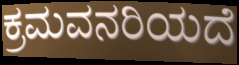
ಕ್ರಮವನರಿಯದೆ